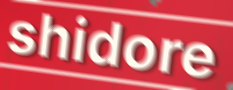
shidore